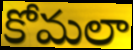
కోమలా